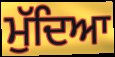
ਮੁੱਦਿਆ